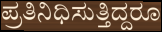
ಪ್ರತಿನಿಧಿಸುತ್ತಿದ್ದರೂ